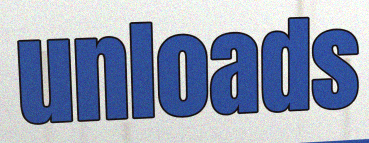
unloads